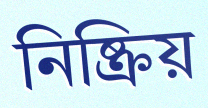
নিষ্ক্রিয়